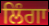
ਲਿੰਗਾ